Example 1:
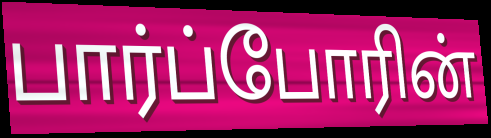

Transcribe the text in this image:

பார்ப்போரின்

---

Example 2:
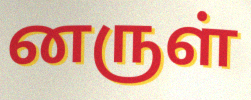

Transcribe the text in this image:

னருள்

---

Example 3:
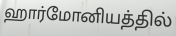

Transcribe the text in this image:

ஹார்மோனியத்தில்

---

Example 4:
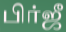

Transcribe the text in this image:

பிர்ஜீ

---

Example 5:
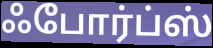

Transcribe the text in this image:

ஃபோர்ப்ஸ்